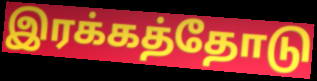
இரக்கத்தோடு